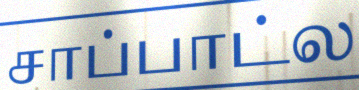
சாப்பாட்ல